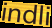
indli